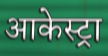
आकेस्ट्रा